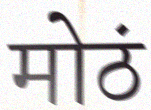
मोठं